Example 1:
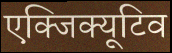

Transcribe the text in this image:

एक्जिक्यूटिव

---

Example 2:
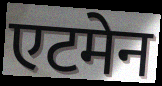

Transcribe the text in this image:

एटमेन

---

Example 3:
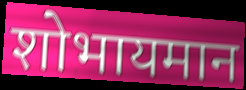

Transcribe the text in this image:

शोभायमान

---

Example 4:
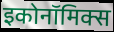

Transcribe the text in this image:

इकोनॉमिक्स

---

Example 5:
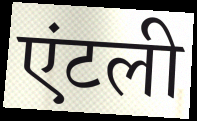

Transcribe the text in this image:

एंटली